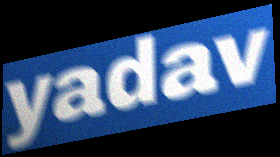
yadav